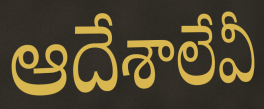
ఆదేశాలేవీ